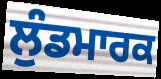
ਲੁੰਡਮਾਰਕ